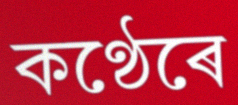
কণ্ঠেৰে